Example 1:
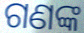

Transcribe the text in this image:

ଗଣଙ୍କ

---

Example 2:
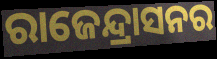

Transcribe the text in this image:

ରାଜେନ୍ଦ୍ରାସନର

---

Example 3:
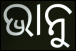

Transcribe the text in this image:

ଭାନୁ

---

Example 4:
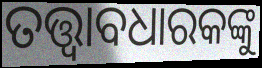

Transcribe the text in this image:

ତତ୍ତ୍ଵାବଧାରକଙ୍କୁ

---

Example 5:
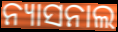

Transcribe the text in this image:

ନ୍ୟାସନାଲ